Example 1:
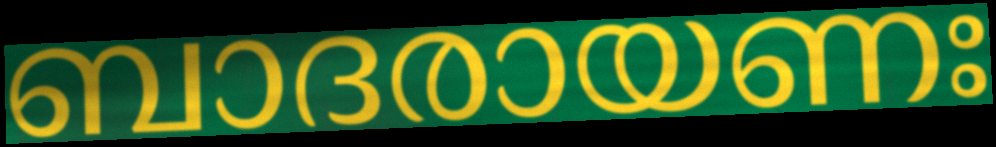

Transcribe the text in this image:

ബാദരായണഃ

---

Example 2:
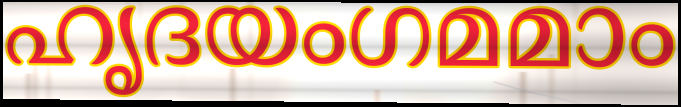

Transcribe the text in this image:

ഹൃദയംഗമമാം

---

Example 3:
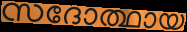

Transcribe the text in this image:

സദോത്ഥായ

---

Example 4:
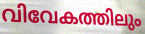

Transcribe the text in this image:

വിവേകത്തിലും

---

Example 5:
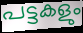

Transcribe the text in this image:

പട്ടകളും